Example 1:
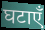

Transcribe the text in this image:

घटाएँ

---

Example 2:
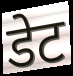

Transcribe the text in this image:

डेट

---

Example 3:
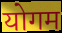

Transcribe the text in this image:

योगम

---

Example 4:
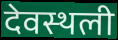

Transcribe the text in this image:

देवस्थली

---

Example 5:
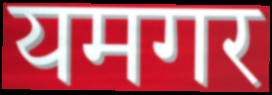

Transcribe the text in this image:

यमगर